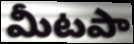
మీటపా